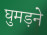
घुमड़ने